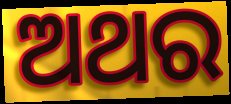
ଅଥର